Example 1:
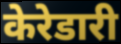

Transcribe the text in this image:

केरेडारी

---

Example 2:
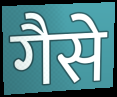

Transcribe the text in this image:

गैसे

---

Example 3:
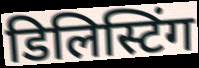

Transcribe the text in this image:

डिलिस्टिंग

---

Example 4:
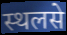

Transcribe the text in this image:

स्थलसे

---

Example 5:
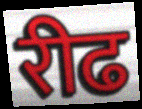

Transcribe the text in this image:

रीढ